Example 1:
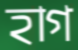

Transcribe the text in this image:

হাগ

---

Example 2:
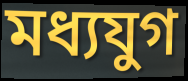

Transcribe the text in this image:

মধ্যযুগ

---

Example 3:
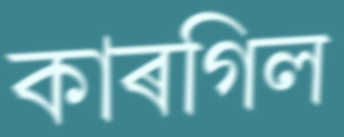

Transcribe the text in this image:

কাৰগিল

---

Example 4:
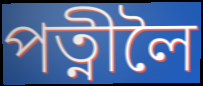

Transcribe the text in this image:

পত্নীলৈ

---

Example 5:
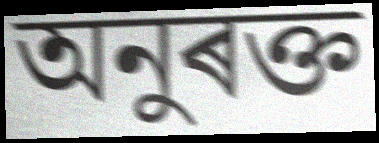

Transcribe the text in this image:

অনুৰক্ত